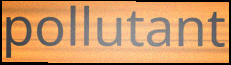
pollutant